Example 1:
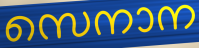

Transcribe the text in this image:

സെനാന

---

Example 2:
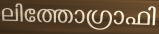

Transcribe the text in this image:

ലിത്തോഗ്രാഫി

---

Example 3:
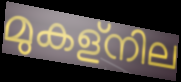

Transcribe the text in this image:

മുകള്നില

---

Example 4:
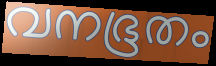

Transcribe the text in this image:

വനഭൂതം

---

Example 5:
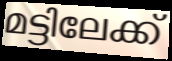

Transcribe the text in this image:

മട്ടിലേക്ക്